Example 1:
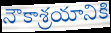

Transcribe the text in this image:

నౌకాశ్రయానికి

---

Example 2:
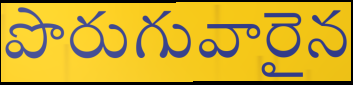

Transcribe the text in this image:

పొరుగువారైన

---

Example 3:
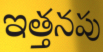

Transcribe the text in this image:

ఇత్తనపు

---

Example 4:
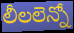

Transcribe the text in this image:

లీలలెన్నో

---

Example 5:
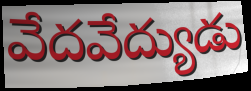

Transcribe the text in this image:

వేదవేద్యుడు